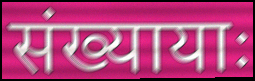
संख्यायाः